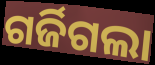
ଗର୍ଜିଗଲା